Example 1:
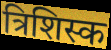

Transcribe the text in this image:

त्रिशिस्क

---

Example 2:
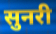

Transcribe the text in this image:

सुनरी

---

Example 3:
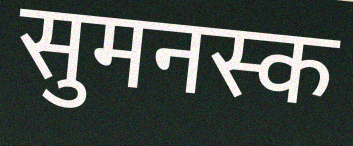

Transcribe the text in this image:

सुमनस्क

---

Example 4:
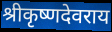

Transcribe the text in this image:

श्रीकृष्णदेवराय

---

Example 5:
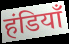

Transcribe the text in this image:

हंडियाँ